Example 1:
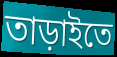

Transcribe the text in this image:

তাড়াইতে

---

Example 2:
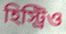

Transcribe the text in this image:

হিস্ট্রিও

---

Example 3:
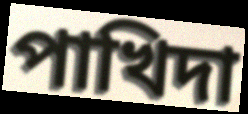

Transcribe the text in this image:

পাখিদা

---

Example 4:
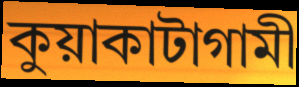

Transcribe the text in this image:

কুয়াকাটাগামী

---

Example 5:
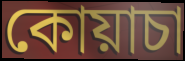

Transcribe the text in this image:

কোয়াচা